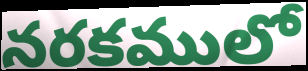
నరకములో